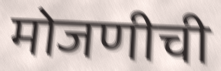
मोजणीची